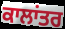
ਕਾਲਾਂਤਰ